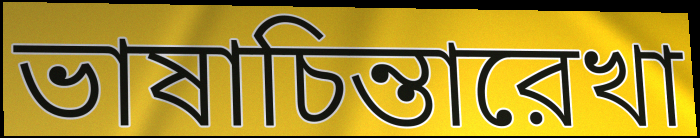
ভাষাচিন্তারেখা